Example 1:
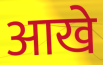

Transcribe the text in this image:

आखे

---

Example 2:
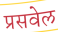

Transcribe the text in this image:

प्रसवेल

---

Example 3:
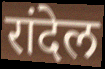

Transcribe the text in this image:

रांदेल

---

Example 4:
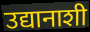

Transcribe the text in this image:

उद्यानाशी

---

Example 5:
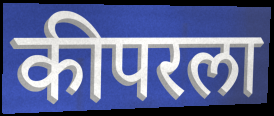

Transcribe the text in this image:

कीपरला